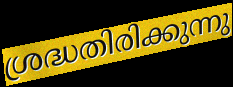
ശ്രദ്ധതിരിക്കുന്നു